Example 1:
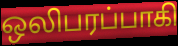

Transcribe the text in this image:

ஒலிபரப்பாகி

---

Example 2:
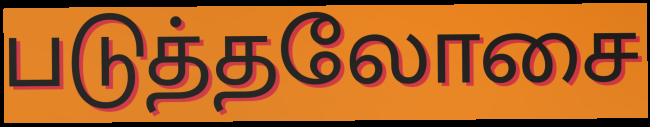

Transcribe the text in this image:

படுத்தலோசை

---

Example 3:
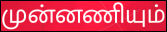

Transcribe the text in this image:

முன்னணியும்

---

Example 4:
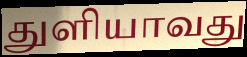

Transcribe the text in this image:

துளியாவது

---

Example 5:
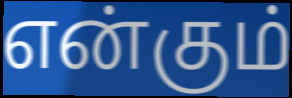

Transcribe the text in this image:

என்கும்